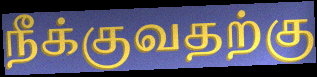
நீக்குவதற்கு